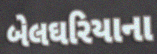
બેલઘરિયાના